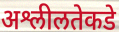
अश्लीलतेकडे